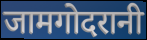
जामगोदरानी